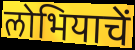
लोभियाचें